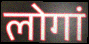
लोगां